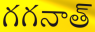
గగనాత్